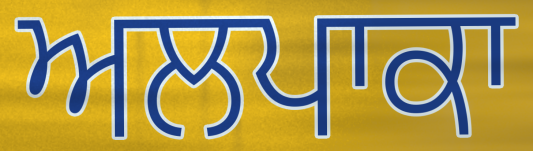
ਅਲਪਾਕਾ